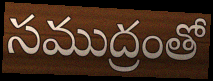
సముద్రంతో